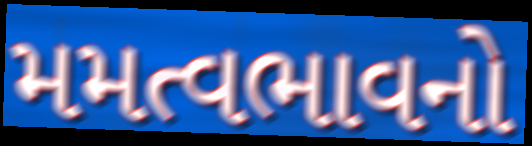
મમત્વભાવનો